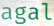
agal